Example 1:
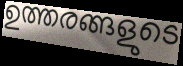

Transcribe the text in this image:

ഉത്തരങ്ങളുടെ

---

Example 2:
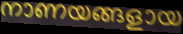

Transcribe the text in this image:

നാണയങ്ങളായ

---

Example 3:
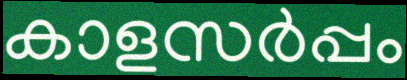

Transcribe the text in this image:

കാളസർപ്പം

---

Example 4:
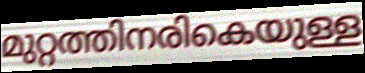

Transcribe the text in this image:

മുറ്റത്തിനരികെയുള്ള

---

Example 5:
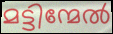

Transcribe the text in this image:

മട്ടിന്മേൽ